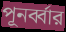
পূনর্ব্বার